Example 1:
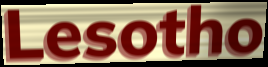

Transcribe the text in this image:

Lesotho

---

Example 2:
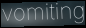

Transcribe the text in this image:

vomiting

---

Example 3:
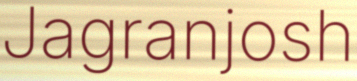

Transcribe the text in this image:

Jagranjosh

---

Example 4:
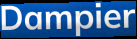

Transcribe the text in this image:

Dampier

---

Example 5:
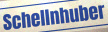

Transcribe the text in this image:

Schellnhuber